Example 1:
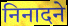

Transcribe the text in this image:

निनादने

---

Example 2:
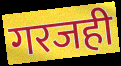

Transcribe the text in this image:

गरजही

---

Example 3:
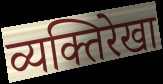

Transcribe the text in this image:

व्यक्तिरेखा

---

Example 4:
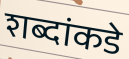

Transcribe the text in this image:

शब्दांकडे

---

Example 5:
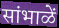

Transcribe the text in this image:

सांभाळें